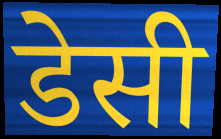
डेसी